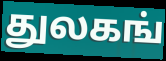
துலகங்